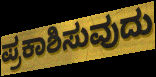
ಪ್ರಕಾಶಿಸುವುದು